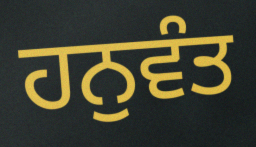
ਹਨੁਵੰਤ